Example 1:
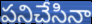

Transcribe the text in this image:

పనిచేసినా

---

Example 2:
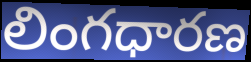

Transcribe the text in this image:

లింగధారణ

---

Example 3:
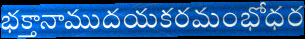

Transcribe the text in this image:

భక్తానాముదయకరమంభోధర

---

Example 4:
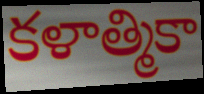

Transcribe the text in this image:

కళాత్మికా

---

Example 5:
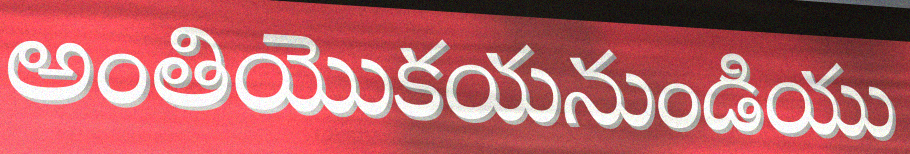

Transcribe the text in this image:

అంతియొకయనుండియు